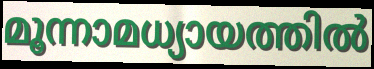
മൂന്നാമധ്യായത്തിൽ